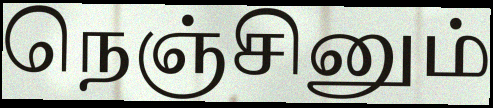
நெஞ்சினும்